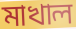
মাখাল